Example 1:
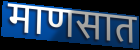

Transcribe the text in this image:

माणसात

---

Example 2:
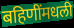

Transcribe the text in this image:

बहिणींमधली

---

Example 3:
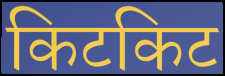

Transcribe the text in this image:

किटकिट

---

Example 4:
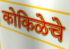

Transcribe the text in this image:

कोकिळेचे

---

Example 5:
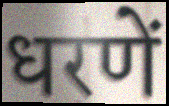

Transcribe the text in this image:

धरणें